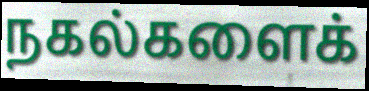
நகல்களைக்